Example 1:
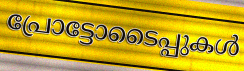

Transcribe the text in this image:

പ്രോട്ടോടൈപ്പുകൾ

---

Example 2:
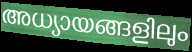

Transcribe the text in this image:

അധ്യായങ്ങളിലും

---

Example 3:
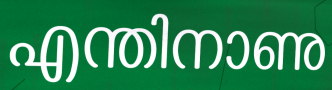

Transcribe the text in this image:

എന്തിനാണു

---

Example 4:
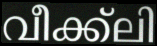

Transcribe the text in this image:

വീക്ക്ലി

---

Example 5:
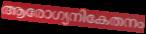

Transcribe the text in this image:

ആരോഗ്യനികേതനം